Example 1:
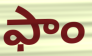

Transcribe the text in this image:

ఫాం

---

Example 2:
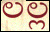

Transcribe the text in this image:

లల్ల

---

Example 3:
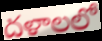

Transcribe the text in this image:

దళాలలో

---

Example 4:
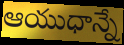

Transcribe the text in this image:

ఆయుధాన్నే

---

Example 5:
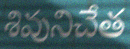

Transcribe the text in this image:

శివునిచేత